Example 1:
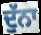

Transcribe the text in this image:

ਦੁੱਨਾ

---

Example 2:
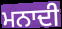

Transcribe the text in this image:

ਮਨਾਦੀ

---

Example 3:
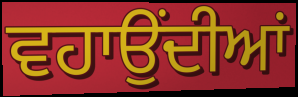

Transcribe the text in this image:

ਵਹਾਉਂਦੀਆਂ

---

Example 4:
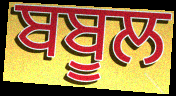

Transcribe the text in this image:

ਬਬੂਲ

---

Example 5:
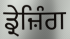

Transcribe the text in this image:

ਡ੍ਰੇਜ਼ਿੰਗ